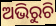
ଅଭିରୁଚି